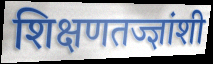
शिक्षणतज्ज्ञांशी